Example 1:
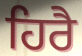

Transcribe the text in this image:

ਹਿਰੈ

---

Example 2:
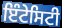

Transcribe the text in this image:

ਇੰਟੇਸਿਟੀ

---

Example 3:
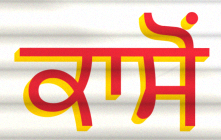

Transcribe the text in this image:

ਕਾਸੋਂ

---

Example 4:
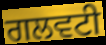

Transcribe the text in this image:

ਗਲਵਟੀ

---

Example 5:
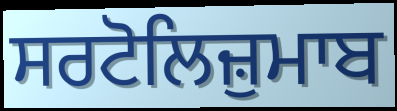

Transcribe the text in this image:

ਸਰਟੋਲਿਜ਼ੁਮਾਬ